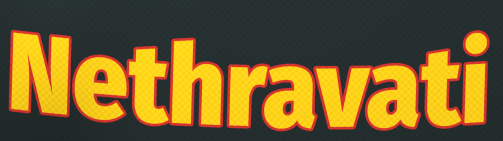
Nethravati